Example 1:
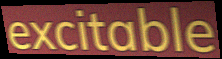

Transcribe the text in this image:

excitable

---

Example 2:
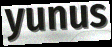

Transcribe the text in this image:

yunus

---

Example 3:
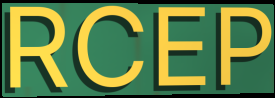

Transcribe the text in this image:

RCEP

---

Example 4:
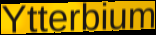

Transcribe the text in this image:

Ytterbium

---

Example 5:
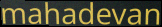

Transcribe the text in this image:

mahadevan